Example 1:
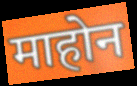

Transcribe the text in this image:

माहोन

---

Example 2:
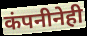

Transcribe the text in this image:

कंपनीनेही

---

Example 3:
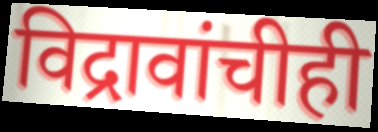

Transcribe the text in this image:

विद्रावांचीही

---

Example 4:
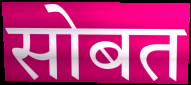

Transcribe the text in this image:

सोबत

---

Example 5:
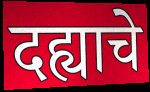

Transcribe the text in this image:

दह्याचे